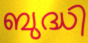
ബുദ്ധി